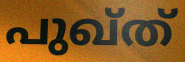
പുഖ്ത്